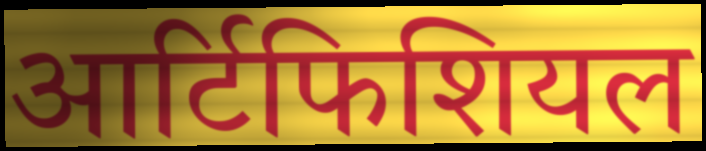
आर्टिफिशियल